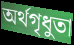
অর্থগৃধুতা